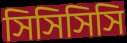
সিসিসিসি